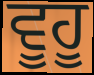
ਵੂਹੂ